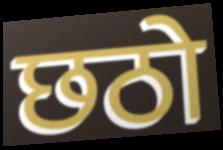
छठो